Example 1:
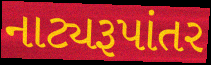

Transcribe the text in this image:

નાટ્યરૂપાંતર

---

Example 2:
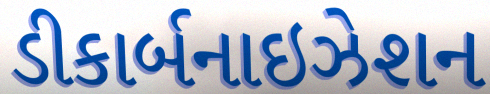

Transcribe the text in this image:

ડીકાર્બનાઇઝેશન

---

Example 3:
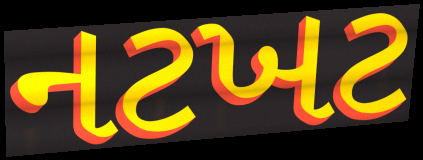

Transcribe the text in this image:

નટખટ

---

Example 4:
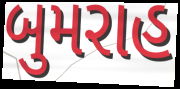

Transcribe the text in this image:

બુમરાહ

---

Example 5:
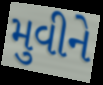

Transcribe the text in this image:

મુવીને